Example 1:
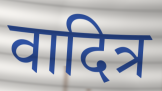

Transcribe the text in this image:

वादित्र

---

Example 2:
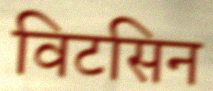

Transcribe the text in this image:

विटसिन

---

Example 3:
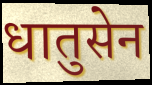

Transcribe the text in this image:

धातुसेन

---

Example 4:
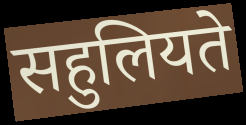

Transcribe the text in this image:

सहुलियते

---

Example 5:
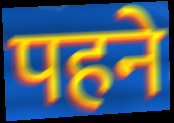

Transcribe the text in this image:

पहने